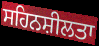
ਸਹਿਨਸ਼ੀਲਤਾ